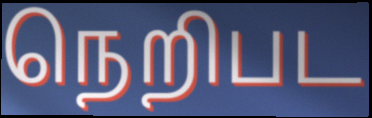
நெறிபட